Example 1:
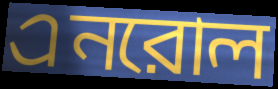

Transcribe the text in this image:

এনরোল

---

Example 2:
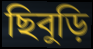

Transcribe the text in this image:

ছিবুড়ি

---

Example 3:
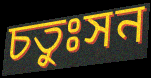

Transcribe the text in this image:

চতুঃসন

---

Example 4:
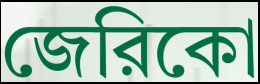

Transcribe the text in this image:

জেরিকো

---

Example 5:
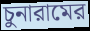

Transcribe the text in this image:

চুনারামের